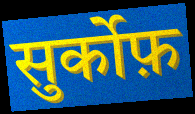
सुर्कोफ़